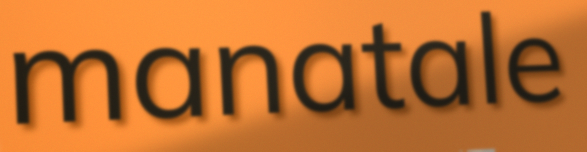
manatale